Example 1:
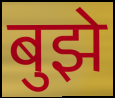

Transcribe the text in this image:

बुझे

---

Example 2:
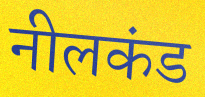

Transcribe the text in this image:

नीलकंड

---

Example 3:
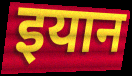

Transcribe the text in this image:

इयान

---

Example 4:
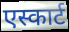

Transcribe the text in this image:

एस्कार्ट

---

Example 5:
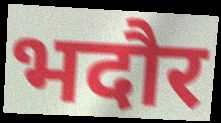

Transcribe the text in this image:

भदौर